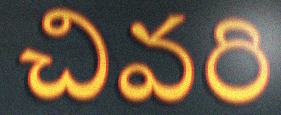
చివరి